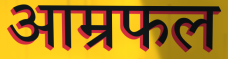
आम्रफल